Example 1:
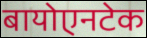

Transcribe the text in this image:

बायोएनटेक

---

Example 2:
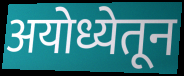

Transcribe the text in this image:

अयोध्येतून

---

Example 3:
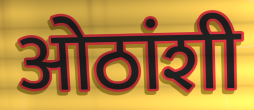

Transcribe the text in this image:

ओठांशी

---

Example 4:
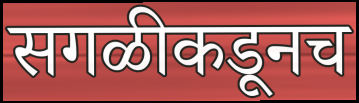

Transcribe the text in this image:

सगळीकडूनच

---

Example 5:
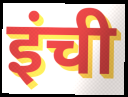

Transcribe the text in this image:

इंची